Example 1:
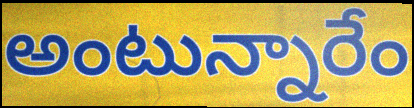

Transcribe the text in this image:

అంటున్నారేం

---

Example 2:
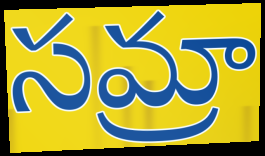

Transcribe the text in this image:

సమ్రా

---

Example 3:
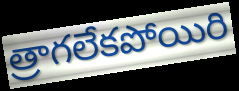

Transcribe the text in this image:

త్రాగలేకపోయిరి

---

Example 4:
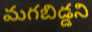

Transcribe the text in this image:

మగబిడ్డని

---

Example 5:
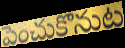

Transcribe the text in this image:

పెంచుకొనుట